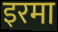
इरमा